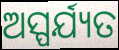
ଅସ୍ପର୍ଯ୍ୟତ